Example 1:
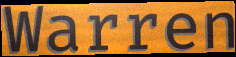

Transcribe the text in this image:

Warren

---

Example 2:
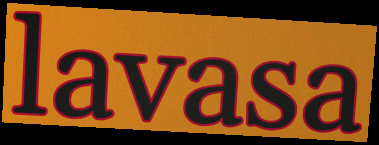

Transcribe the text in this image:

lavasa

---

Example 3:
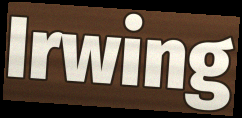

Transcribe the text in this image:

Irwing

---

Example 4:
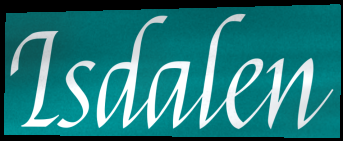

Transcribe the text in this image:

Isdalen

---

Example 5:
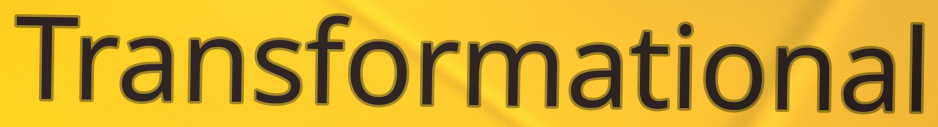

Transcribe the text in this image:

Transformational